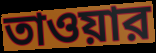
তাওয়ার